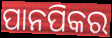
ପାନପିକର